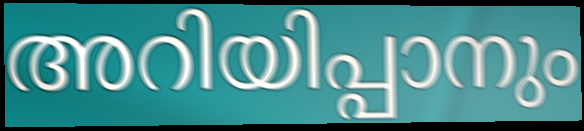
അറിയിപ്പാനും